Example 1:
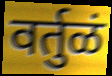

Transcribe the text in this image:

वर्तुळं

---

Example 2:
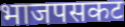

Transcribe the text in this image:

भाजपसकट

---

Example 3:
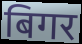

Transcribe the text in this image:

बिगर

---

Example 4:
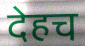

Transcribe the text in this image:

देहच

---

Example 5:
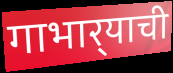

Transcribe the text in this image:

गाभार्‍याची